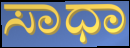
ಸಾಧಾ